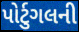
પોર્ટુગલની